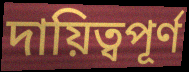
দায়িত্বপূর্ণ